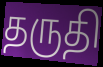
தருதி